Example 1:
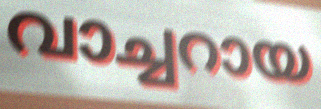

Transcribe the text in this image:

വാച്ചറായ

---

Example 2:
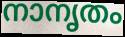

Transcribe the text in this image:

നാനൃതം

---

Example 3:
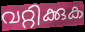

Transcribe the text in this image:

വറ്റിക്കുക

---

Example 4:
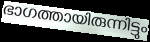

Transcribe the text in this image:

ഭാഗത്തായിരുന്നിട്ടും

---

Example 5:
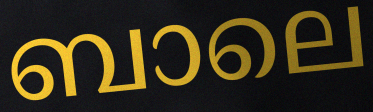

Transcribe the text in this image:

ബാലെ